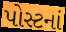
પોસ્ટનાં